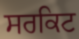
ਸਰਕਿਟ